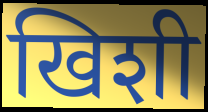
खिशी